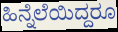
ಹಿನ್ನೆಲೆಯಿದ್ದರೂ